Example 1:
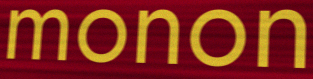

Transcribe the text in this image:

monon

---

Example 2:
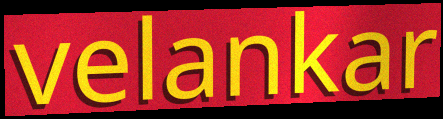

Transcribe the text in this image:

velankar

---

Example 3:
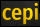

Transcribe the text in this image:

cepi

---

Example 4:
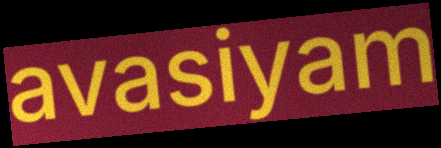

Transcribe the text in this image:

avasiyam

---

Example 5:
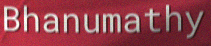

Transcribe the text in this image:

Bhanumathy